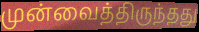
முன்வைத்திருந்தது